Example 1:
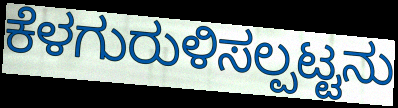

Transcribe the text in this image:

ಕೆಳಗುರುಳಿಸಲ್ಪಟ್ಟನು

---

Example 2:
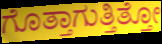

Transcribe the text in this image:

ಗೊತ್ತಾಗುತ್ತಿತ್ತೋ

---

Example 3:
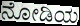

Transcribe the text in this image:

ನೋಡಿಯ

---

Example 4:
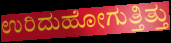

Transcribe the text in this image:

ಉರಿದುಹೋಗುತ್ತಿತ್ತು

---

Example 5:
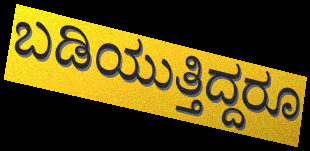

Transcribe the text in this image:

ಬಡಿಯುತ್ತಿದ್ದರೂ